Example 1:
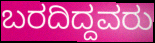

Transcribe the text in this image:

ಬರದಿದ್ದವರು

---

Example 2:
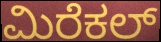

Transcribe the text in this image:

ಮಿರೆಕಲ್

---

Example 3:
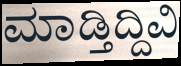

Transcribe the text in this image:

ಮಾಡ್ತಿದ್ದಿವಿ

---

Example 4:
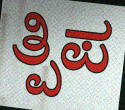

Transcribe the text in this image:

ತ್ಪಿಪ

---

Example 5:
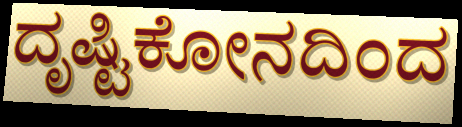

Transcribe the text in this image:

ದೃಷ್ಟಿಕೋನದಿಂದ